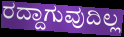
ರದ್ದಾಗುವುದಿಲ್ಲ